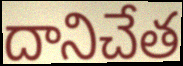
దానిచేత